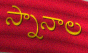
స్నానాల